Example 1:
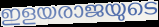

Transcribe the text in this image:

ഇളയരാജയുടെ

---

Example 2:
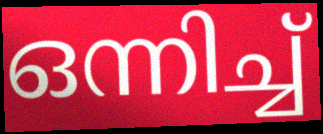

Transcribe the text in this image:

ഒന്നിച്ച്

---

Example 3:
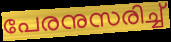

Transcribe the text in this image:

പേരനുസരിച്ച്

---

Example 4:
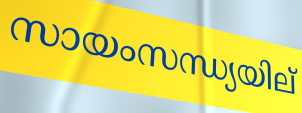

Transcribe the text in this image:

സായംസന്ധ്യയില്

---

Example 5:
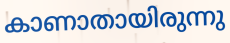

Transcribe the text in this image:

കാണാതായിരുന്നു